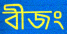
বীজং